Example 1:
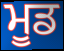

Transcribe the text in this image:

ਮੂਡ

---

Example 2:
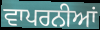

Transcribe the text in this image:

ਵਾਪਰਨੀਆਂ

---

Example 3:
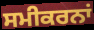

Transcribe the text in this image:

ਸਮੀਕਰਨਾਂ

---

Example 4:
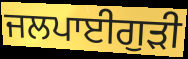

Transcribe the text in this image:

ਜਲਪਾਈਗੁਡ਼ੀ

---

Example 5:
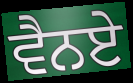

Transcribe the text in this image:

ਵੈਨਏ